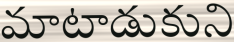
మాటాడుకుని